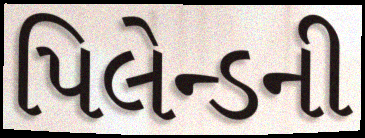
પિલેન્ડની